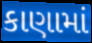
કાણામાં